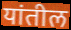
यांतील